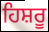
ਹਿਸ਼ਰੂ